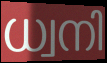
ധ്വനി